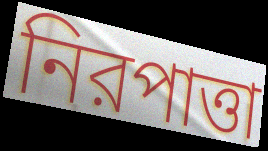
নিরপাত্তা